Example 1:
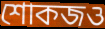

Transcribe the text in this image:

শোকজও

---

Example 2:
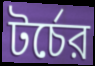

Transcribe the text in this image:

টর্চের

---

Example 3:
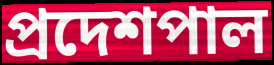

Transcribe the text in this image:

প্রদেশপাল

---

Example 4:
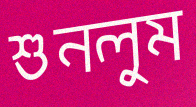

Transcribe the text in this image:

শুনলুম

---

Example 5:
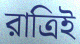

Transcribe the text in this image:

রাত্রিই